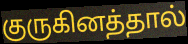
குருகினத்தால்